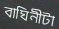
বাঘিনীটা